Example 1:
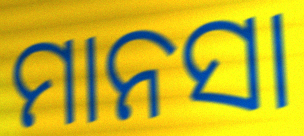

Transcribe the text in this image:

ମାନସା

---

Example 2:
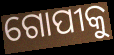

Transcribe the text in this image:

ଗୋପୀକୁ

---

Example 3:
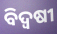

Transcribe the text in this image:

ବିଦ୍ୱଷୀ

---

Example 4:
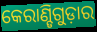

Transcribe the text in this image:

କେରାଣ୍ଡିଗୁଡ଼ାର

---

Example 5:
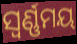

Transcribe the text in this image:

ସ୍ଵର୍ଣ୍ଣମୟ